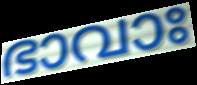
ഭാവാഃ